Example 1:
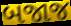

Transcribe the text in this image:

બજાજ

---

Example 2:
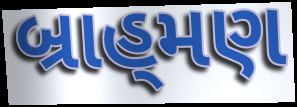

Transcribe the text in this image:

બ્રાહ્‌મણ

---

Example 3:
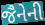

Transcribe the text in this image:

જૈનેની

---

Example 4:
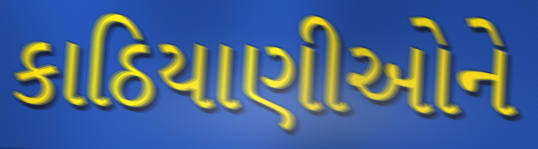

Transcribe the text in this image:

કાઠિયાણીઓને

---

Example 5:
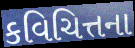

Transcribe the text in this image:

કવિચિત્તના